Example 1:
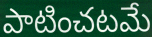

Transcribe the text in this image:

పాటించటమే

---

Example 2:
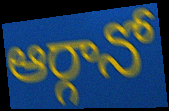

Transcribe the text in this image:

ఆర్గానో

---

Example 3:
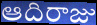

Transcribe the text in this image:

ఆదిరాజు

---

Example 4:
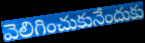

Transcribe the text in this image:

వెలిగించుకునేందుకు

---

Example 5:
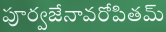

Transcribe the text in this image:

పూర్వజేనావరోపితమ్